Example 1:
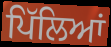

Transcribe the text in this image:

ਪਿੱਲਿਆਂ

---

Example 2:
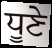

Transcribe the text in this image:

ਧੂਣੇ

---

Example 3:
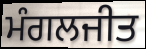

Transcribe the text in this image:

ਮੰਗਲਜੀਤ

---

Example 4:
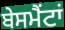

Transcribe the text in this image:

ਬੇਸਮੈਂਟਾਂ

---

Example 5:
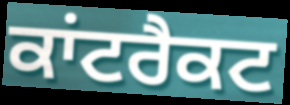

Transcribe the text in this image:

ਕਾਂਟਰੈਕਟ